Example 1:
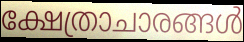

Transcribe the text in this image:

ക്ഷേത്രാചാരങ്ങൾ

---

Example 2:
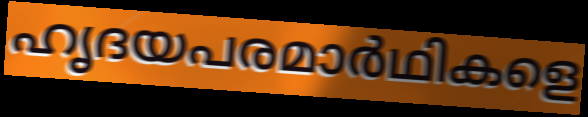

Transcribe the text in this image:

ഹൃദയപരമാർഥികളെ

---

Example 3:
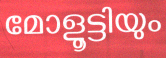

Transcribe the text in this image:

മോളൂട്ടിയും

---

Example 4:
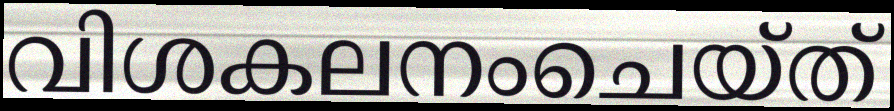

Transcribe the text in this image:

വിശകലനംചെയ്ത്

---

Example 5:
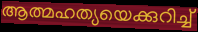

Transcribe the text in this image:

ആത്മഹത്യയെക്കുറിച്ച്